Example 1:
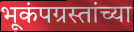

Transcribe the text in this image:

भूकंपग्रस्तांच्या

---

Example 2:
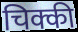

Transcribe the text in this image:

चिक्की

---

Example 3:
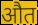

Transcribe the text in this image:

औत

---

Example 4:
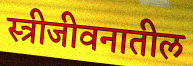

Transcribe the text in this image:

स्त्रीजीवनातील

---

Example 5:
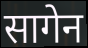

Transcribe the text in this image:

सागेन